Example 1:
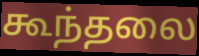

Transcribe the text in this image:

கூந்தலை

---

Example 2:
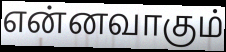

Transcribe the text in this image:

என்னவாகும்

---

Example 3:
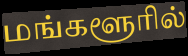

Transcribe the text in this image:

மங்களூரில்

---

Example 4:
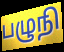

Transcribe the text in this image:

பழுநி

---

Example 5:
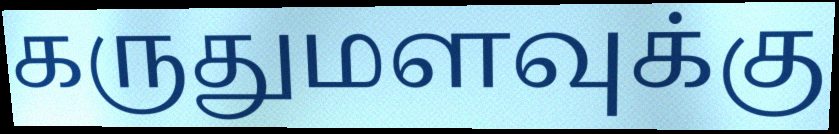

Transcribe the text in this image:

கருதுமளவுக்கு